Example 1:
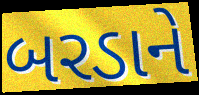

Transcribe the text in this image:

બરડાને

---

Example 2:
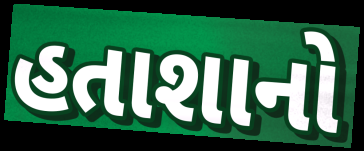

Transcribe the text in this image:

હતાશાનો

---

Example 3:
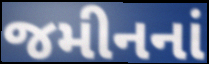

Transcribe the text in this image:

જમીનનાં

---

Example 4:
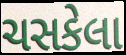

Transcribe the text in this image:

ચસકેલા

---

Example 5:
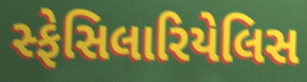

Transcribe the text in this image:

સ્ફેસિલારિયેલિસ